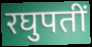
रघुपतीं